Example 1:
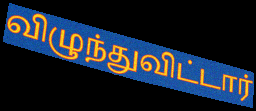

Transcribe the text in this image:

விழுந்துவிட்டார்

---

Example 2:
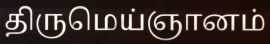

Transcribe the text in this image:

திருமெய்ஞானம்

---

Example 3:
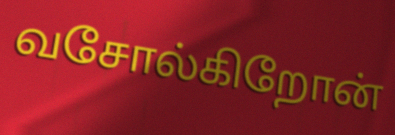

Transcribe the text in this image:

வசோல்கிறோன்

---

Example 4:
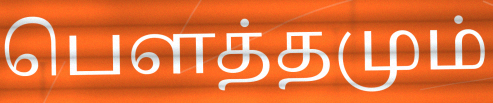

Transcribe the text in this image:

பௌத்தமும்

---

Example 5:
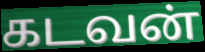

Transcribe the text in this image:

கடவன்